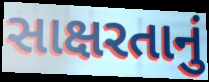
સાક્ષરતાનું